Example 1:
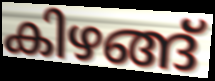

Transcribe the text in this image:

കിഴങ്ങ്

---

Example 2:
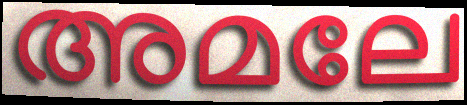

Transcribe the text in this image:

അമലേ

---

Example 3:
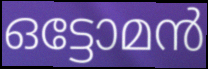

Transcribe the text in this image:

ഒട്ടോമൻ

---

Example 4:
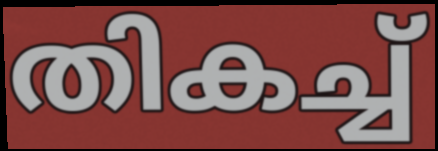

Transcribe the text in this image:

തികച്ച്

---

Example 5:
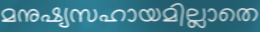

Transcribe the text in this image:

മനുഷ്യസഹായമില്ലാതെ